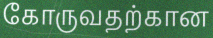
கோருவதற்கான